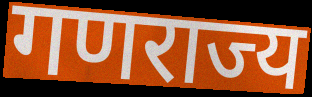
गणराज्य